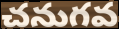
చనుగవ